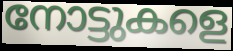
നോട്ടുകളെ